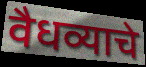
वैधव्याचे